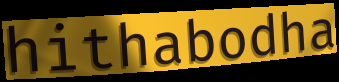
hithabodha